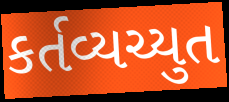
કર્તવ્યચ્યુત